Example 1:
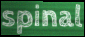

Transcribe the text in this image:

spinal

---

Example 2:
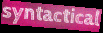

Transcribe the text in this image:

syntactical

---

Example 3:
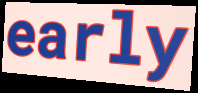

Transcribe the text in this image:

early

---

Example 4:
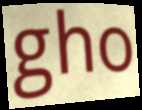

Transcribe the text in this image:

gho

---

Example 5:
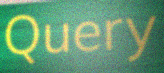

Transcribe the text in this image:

Query